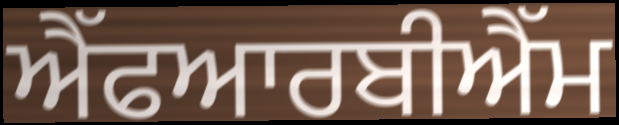
ਐੱਫਆਰਬੀਐੱਮ